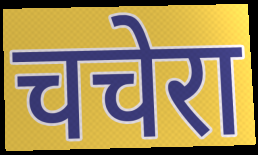
चचेरा